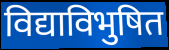
विद्याविभुषित